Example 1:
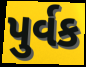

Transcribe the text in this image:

પુર્વક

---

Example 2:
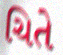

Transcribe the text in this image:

ચિતે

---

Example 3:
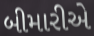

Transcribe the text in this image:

બીમારીએ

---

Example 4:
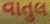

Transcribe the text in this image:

વાતુલ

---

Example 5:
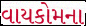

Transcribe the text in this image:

વાયકોમના